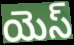
యెస్